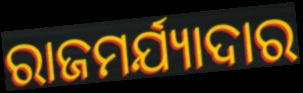
ରାଜମର୍ଯ୍ୟାଦାର